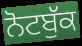
ਨੋਟਬੁੱਕ